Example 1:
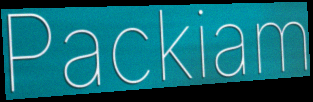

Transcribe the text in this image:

Packiam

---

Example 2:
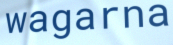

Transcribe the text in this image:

wagarna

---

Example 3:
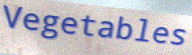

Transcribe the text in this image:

Vegetables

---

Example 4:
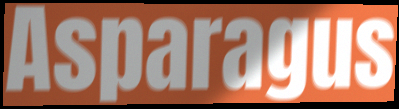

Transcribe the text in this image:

Asparagus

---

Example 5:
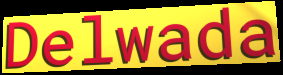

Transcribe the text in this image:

Delwada